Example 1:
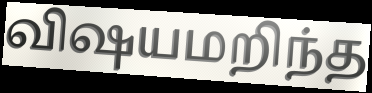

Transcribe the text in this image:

விஷயமறிந்த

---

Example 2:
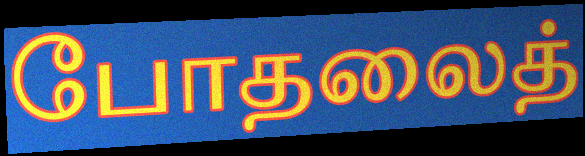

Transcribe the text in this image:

போதலைத்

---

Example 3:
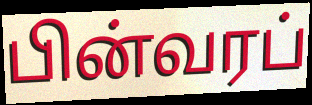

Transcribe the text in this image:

பின்வரப்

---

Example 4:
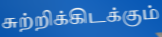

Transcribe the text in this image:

சுற்றிக்கிடக்கும்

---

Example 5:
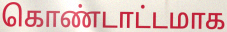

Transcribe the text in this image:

கொண்டாட்டமாக